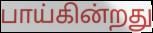
பாய்கின்றது